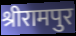
श्रीरामपुर